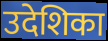
उदेशिका